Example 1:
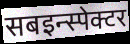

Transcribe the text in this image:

सबइन्स्पेक्टर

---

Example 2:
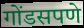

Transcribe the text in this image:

गोंडसपणे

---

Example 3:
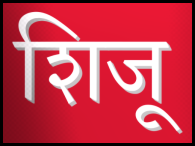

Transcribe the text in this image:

शिजू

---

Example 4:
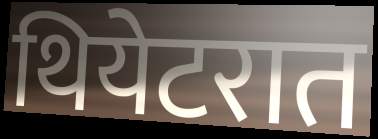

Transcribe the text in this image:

थियेटरात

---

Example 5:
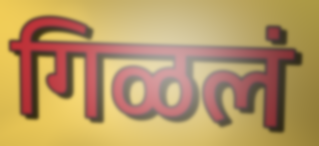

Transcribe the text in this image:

गिळलं